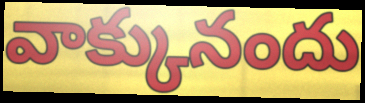
వాక్కునందు